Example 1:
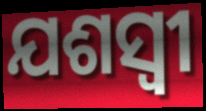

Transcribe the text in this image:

ଯଶସ୍ବୀ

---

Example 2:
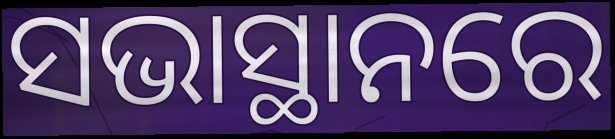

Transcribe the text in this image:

ସଭାସ୍ଥାନରେ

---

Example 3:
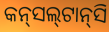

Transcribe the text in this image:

କନ୍‌ସଲ୍‌ଟାନ୍‌ସି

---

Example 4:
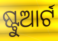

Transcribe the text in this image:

ଷ୍ଟୁଆର୍ଟ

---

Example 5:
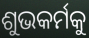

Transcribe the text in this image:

ଶୁଭକର୍ମକୁ